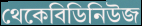
থেকেবিডিনিউজ